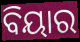
ବିୟାର